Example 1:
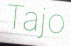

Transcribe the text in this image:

Tajo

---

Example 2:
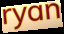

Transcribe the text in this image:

ryan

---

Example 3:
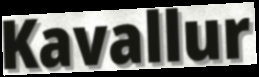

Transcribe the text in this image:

Kavallur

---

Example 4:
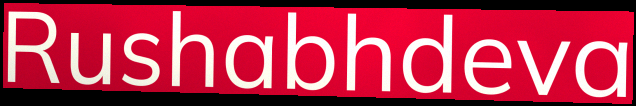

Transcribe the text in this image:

Rushabhdeva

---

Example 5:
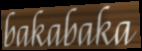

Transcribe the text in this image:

bakabaka